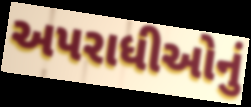
અપરાધીઓનું